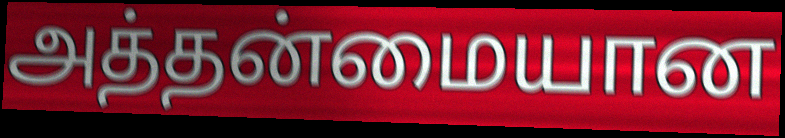
அத்தன்மையான